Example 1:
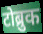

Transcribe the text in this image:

टोब्रुक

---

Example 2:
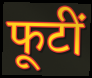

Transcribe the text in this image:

फूटीं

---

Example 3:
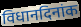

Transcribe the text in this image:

विधानदिनांक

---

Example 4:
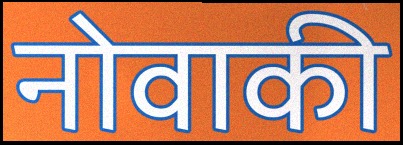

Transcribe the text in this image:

नोवाकी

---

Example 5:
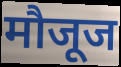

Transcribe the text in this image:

मौजूज